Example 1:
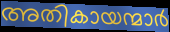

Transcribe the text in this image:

അതികായന്മാർ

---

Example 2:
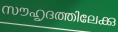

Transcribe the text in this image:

സൗഹൃദത്തിലേക്കു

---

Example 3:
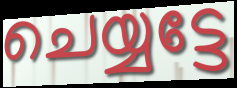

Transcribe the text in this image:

ചെയ്യട്ടേ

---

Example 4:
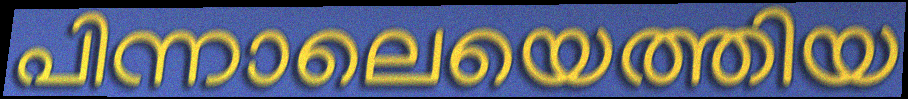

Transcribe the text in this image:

പിന്നാലെയെത്തിയ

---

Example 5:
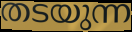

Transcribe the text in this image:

തടയുന്ന